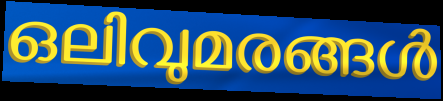
ഒലിവുമരങ്ങൾ